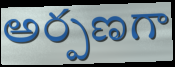
అర్పణగా